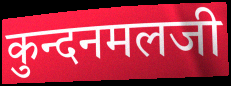
कुन्दनमलजी